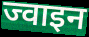
ज्वाइन